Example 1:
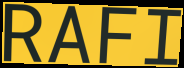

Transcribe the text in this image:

RAFI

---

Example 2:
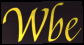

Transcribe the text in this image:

Wbe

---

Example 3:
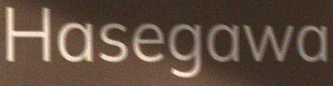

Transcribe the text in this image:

Hasegawa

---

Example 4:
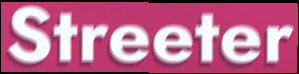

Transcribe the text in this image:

Streeter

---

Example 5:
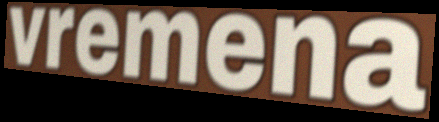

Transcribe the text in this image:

vremena